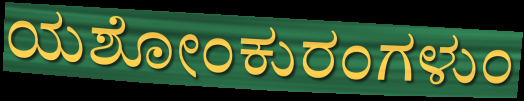
ಯಶೋಂಕುರಂಗಳುಂ